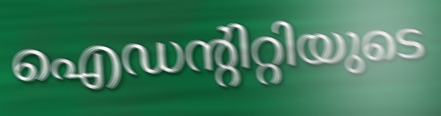
ഐഡന്റിറ്റിയുടെ